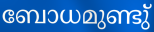
ബോധമുണ്ടു്